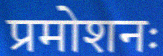
प्रमोशनः